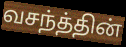
வசந்த்தின்